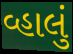
વ્હાલું